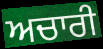
ਅਚਾਰੀ